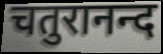
चतुरानन्द